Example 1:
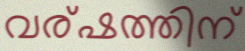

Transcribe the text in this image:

വര്ഷത്തിന്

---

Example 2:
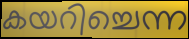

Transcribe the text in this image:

കയറിച്ചെന്ന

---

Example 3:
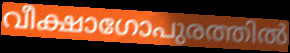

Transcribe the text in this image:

വീക്ഷാഗോപുരത്തിൽ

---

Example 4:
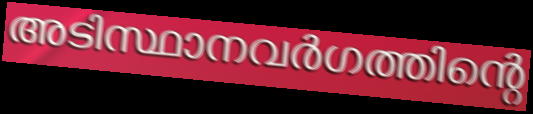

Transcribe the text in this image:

അടിസ്ഥാനവർഗത്തിന്റെ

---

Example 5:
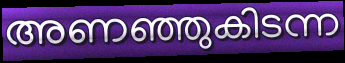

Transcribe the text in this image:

അണഞ്ഞുകിടന്ന